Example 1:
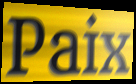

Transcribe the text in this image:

Paix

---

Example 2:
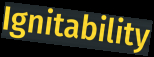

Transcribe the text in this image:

Ignitability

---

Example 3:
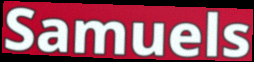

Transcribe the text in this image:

Samuels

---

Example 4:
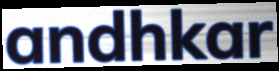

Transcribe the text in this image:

andhkar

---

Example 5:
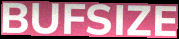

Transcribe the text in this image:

BUFSIZE